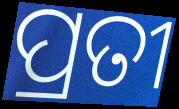
ପ୍ରତୀ